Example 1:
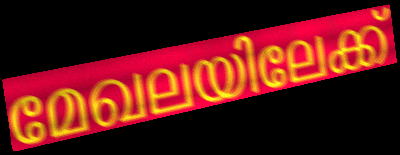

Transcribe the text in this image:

മേഖലയിലേക്ക്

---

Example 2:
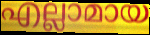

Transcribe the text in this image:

എല്ലാമായ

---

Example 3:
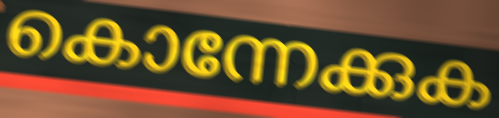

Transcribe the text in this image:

കൊന്നേക്കുക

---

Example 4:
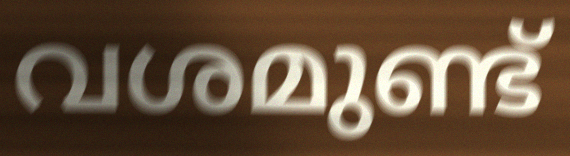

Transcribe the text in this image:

വശമുണ്ട്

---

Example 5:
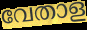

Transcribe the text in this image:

വേതാള